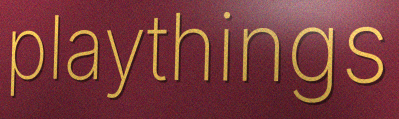
playthings